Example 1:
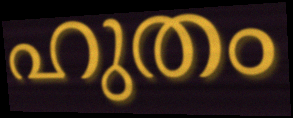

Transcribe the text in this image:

ഹുതം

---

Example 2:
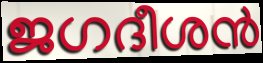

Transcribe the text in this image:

ജഗദീശൻ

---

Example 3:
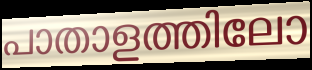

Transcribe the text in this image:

പാതാളത്തിലോ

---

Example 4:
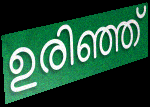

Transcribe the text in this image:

ഉരിഞ്ഞ്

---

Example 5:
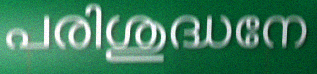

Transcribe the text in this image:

പരിശുദ്ധനേ